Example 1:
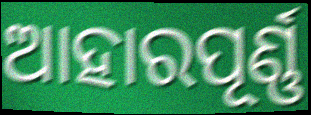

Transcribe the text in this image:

ଆହାରପୂର୍ଣ୍ଣ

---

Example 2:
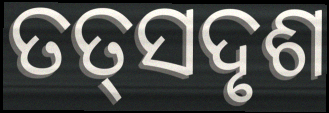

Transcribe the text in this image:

ତତ୍‌ସଦୃଶ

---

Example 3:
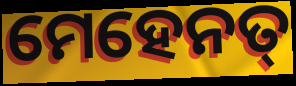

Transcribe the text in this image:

ମେହେନତ୍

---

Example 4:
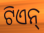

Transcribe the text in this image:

ଟିଏନ୍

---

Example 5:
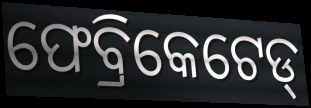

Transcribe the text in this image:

ଫେବ୍ରିକେଟେଡ୍